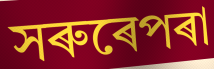
সৰুৰেপৰা